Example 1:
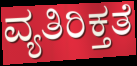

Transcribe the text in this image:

ವ್ಯತಿರಿಕ್ತತೆ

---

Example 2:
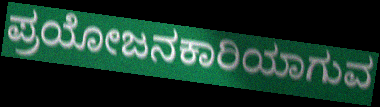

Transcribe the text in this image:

ಪ್ರಯೋಜನಕಾರಿಯಾಗುವ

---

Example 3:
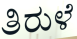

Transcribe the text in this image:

ತಿರುಳೆ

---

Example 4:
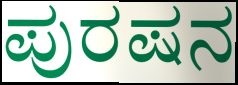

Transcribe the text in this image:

ಪುರಷನ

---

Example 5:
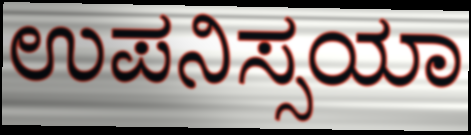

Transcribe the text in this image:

ಉಪನಿಸ್ಸಯಾ